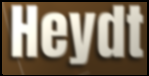
Heydt